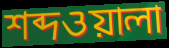
শব্দওয়ালা